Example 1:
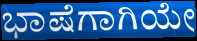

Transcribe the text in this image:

ಭಾಷೆಗಾಗಿಯೇ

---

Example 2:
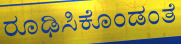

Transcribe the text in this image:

ರೂಢಿಸಿಕೊಂಡಂತೆ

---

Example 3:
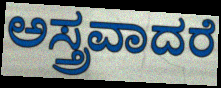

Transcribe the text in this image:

ಅಸ್ತ್ರವಾದರೆ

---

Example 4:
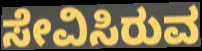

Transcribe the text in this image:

ಸೇವಿಸಿರುವ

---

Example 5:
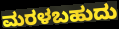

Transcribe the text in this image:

ಮರಳಬಹುದು